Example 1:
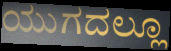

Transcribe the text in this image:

ಯುಗದಲ್ಲೂ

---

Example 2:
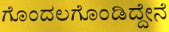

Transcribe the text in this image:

ಗೊಂದಲಗೊಂಡಿದ್ದೇನೆ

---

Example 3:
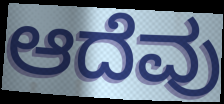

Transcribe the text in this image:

ಆದೆವು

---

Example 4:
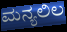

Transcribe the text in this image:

ಮನ್ಯಲಿಲ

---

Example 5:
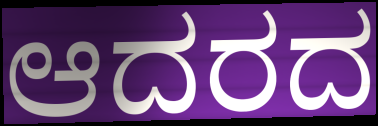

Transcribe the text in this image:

ಆದರದ